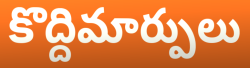
కొద్దిమార్పులు